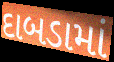
દાબડામાં